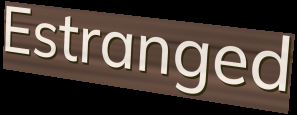
Estranged